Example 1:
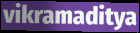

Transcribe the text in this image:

vikramaditya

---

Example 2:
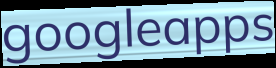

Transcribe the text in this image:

googleapps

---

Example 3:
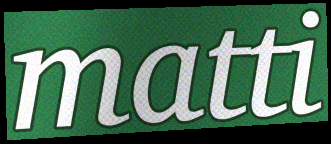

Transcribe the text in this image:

matti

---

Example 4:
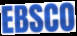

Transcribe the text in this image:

EBSCO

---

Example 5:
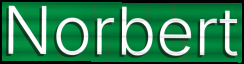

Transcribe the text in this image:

Norbert